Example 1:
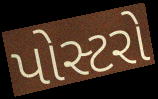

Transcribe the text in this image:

પોસ્ટરો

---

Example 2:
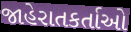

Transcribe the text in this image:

જાહેરાતકર્તાઓ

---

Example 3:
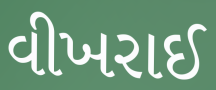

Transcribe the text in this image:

વીખરાઈ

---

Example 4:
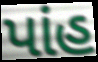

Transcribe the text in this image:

પાંહ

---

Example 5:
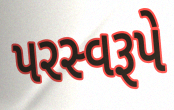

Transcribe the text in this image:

પરસ્વરૂપે